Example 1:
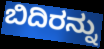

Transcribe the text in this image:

ಬಿದಿರನ್ನು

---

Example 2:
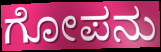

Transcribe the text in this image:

ಗೋಪನು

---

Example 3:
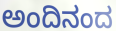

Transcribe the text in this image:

ಅಂದಿನಂದ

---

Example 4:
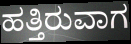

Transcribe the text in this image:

ಹತ್ತಿರುವಾಗ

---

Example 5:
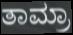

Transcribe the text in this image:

ತಾಮ್ರಾ